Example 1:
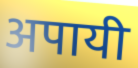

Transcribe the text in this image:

अपायी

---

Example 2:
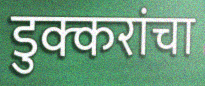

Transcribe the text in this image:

डुक्करांचा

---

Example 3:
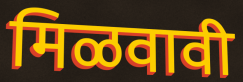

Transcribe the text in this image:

मिळवावी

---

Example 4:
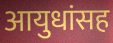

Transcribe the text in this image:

आयुधांसह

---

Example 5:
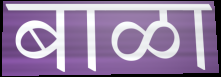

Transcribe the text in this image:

बाळा